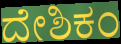
ದೇಶಿಕಂ